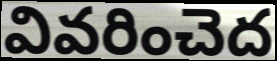
వివరించెద